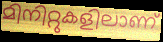
മിനിറ്റുകളിലാണ്